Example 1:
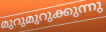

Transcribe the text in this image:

മുറുമുറുക്കുന്നു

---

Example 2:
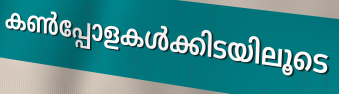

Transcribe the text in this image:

കൺപ്പോളകൾക്കിടയിലൂടെ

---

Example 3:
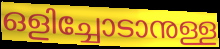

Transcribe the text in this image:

ഒളിച്ചോടാനുള്ള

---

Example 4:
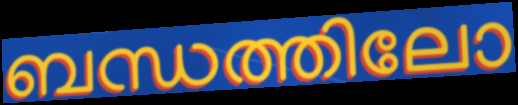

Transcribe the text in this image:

ബന്ധത്തിലോ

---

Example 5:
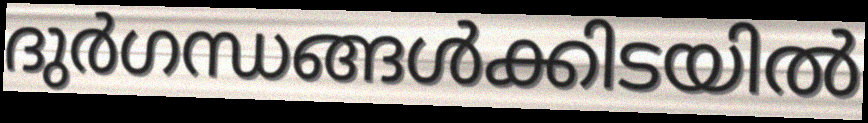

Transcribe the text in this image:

ദുർഗന്ധങ്ങൾക്കിടയിൽ